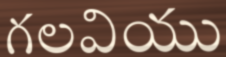
గలవియు